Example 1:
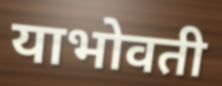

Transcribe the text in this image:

याभोवती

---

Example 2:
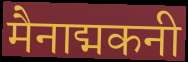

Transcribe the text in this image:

मैनाद्मकनी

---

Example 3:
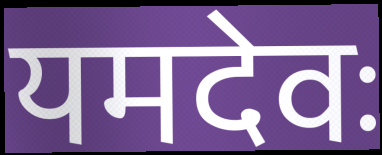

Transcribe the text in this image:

यमदेवः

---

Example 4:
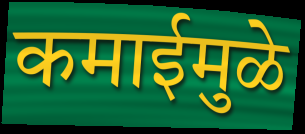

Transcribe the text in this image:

कमाईमुळे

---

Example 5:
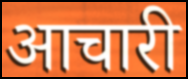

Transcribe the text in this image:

आचारी